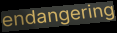
endangering